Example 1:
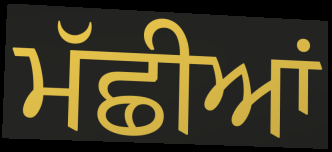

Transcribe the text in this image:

ਮੱਛੀਆਂ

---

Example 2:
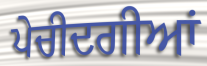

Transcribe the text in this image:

ਪੇਚੀਦਗੀਆਂ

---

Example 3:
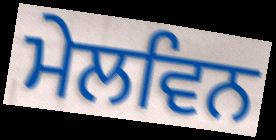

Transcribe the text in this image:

ਮੇਲਵਿਨ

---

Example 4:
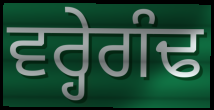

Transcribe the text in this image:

ਵਰ੍ਹੇਗੰਢ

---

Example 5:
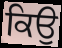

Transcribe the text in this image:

ਕਿਉ